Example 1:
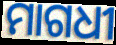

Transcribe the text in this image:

ମାଗଧୀ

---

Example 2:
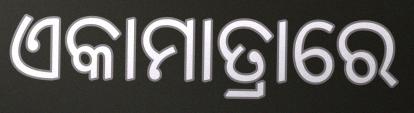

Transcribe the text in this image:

ଏକାମାତ୍ରାରେ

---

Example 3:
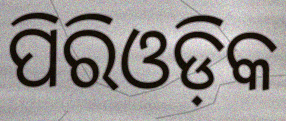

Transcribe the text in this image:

ପିରିଓଡ଼ିକ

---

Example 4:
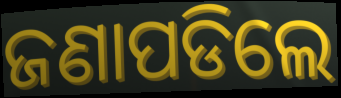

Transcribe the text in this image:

ଜଣାପଡିଲେ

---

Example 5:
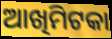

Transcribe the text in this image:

ଆଖିମିଟକା